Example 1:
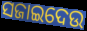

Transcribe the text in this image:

ସଜାଇଦେଉ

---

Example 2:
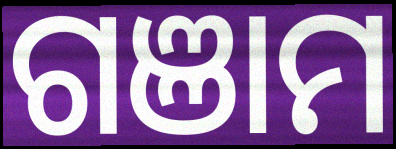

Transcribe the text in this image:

ଗଞାମ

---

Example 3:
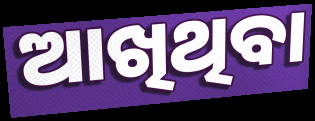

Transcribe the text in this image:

ଆଖିଥିବା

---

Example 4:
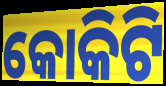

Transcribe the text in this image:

କୋକିଟି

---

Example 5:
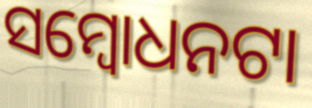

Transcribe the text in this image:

ସମ୍ବୋଧନଟା